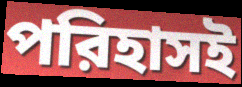
পরিহাসই